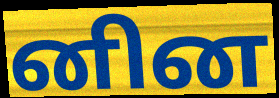
னின